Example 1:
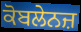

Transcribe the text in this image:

ਕੋਬਲੇਨਜ਼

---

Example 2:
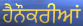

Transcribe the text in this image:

ਹੈਨੌਕਰੀਆਂ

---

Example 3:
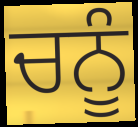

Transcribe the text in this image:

ਚਨੂੰ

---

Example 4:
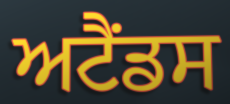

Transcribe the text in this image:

ਅਟੈਂਡਸ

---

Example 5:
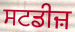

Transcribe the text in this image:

ਸਟਡੀਜ਼